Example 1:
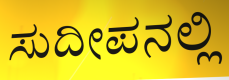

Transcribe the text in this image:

ಸುದೀಪನಲ್ಲಿ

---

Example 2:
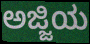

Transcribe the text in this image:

ಅಜ್ಜಿಯ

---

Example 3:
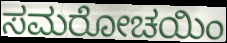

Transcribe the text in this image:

ಸಮರೋಚಯಿಂ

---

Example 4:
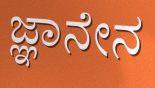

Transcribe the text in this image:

ಜ್ಞಾನೇನ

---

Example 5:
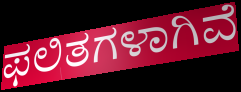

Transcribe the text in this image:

ಫಲಿತಗಳಾಗಿವೆ